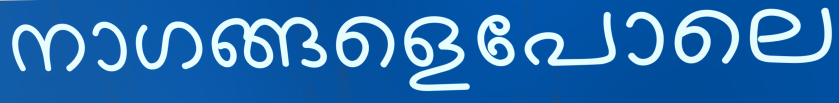
നാഗങ്ങളെപോലെ